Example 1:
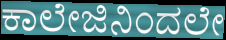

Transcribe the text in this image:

ಕಾಲೇಜಿನಿಂದಲೇ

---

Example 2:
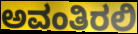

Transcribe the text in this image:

ಅವಂತಿರಲಿ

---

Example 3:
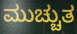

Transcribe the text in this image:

ಮುಚ್ಚುತ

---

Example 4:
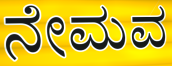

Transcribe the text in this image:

ನೇಮವ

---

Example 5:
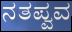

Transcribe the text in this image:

ನತಪ್ವವ